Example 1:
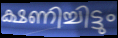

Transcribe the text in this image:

ക്ഷണിച്ചിട്ടും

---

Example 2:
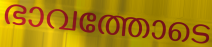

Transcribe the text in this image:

ഭാവത്തോടെ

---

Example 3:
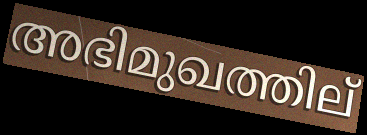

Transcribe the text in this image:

അഭിമുഖത്തില്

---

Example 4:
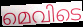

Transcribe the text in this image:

മെവിടെ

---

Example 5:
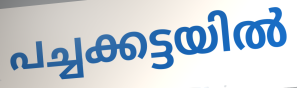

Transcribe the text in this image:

പച്ചക്കട്ടയിൽ